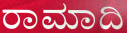
ರಾಮಾದಿ